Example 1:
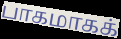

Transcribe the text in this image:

பாகமாகக்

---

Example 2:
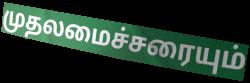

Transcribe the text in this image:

முதலமைச்சரையும்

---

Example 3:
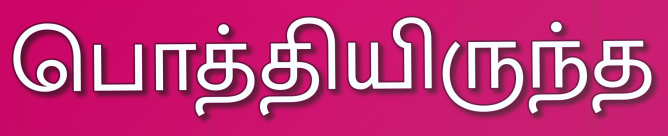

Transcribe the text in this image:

பொத்தியிருந்த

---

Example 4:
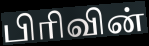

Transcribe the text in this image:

பிரிவின்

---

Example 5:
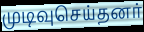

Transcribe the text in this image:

முடிவுசெய்தனர்